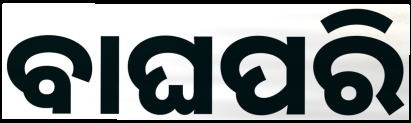
ବାଘପରି